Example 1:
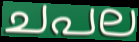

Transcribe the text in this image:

ചപല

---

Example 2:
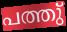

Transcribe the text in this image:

പത്തു്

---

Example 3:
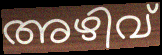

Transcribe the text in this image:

അഴിവ്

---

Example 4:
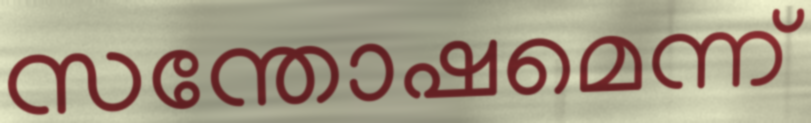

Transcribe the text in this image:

സന്തോഷമെന്ന്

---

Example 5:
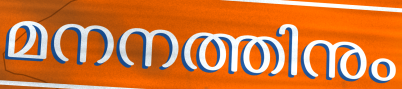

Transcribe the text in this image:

മനനത്തിനും